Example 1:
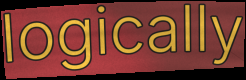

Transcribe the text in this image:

logically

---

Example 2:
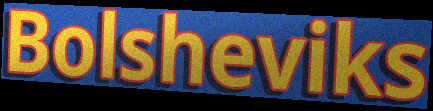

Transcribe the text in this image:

Bolsheviks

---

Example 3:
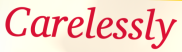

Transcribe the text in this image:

Carelessly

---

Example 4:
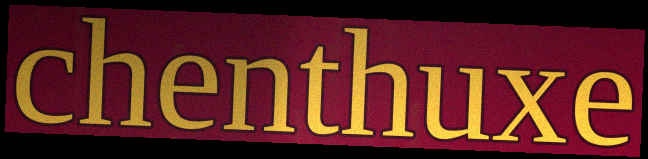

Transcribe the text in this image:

chenthuxe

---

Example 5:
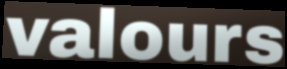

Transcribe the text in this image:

valours